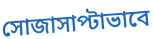
সোজাসাপ্টাভাবে